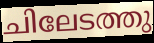
ചിലേടത്തു